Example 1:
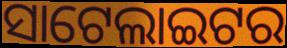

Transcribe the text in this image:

ସାଟେଲାଇଟର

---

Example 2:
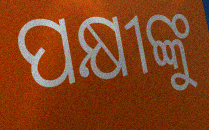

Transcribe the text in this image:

ପକ୍ଷୀଙ୍କୁ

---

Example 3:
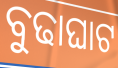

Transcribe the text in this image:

ବୁଢାଘାଟ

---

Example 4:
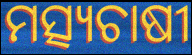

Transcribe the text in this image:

ମତ୍ସ୍ୟଚାଷୀ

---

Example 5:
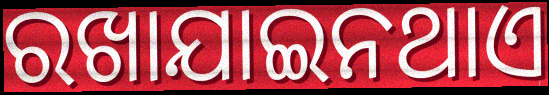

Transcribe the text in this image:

ରଖାଯାଇନଥାଏ